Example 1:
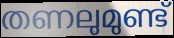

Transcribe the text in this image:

തണലുമുണ്ട്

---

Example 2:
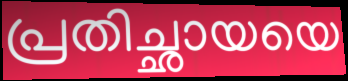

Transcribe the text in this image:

പ്രതിച്ഛായയെ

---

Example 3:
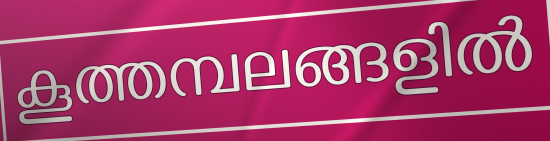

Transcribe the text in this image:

കൂത്തമ്പലങ്ങളിൽ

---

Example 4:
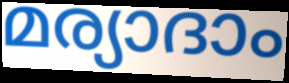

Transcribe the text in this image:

മര്യാദാം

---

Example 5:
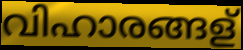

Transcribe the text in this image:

വിഹാരങ്ങള്